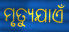
ମୃତ୍ୟୁଯାଏଁ